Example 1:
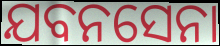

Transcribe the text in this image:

ଯବନସେନା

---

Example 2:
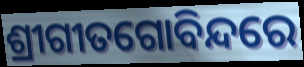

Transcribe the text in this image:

ଶ୍ରୀଗୀତଗୋବିନ୍ଦରେ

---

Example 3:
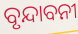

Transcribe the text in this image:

ବୃନ୍ଦାବନୀ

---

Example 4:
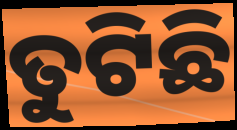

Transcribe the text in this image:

ତୁଟିଛି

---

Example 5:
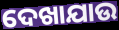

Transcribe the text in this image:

ଦେଖାଯାଉ